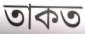
তাকত